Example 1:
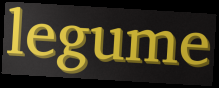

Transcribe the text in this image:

legume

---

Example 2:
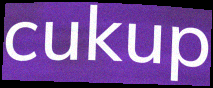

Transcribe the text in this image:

cukup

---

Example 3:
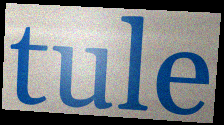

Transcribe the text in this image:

tule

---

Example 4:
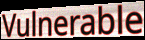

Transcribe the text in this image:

Vulnerable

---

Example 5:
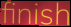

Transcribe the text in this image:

finish